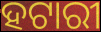
ହଟାରୀ